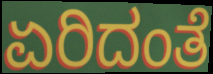
ಏರಿದಂತೆ